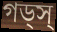
গড্স্